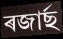
ৰজাৰ্ছ